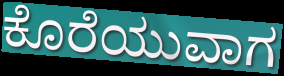
ಕೊರೆಯುವಾಗ